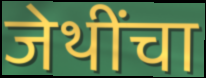
जेथींचा